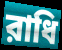
রাধি